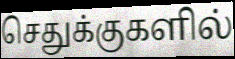
செதுக்குகளில்